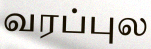
வரப்புல